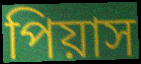
পিয়াস